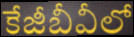
కేజీబీవీలో